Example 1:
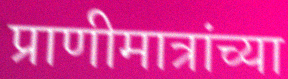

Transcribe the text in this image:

प्राणीमात्रांच्या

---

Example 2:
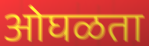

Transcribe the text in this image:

ओघळता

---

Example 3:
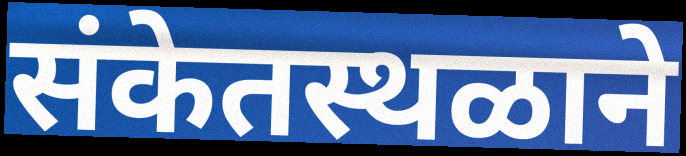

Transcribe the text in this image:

संकेतस्थळाने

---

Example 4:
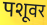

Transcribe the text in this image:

पशूवर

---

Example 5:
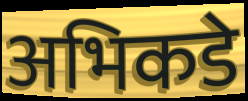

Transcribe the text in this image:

अभिकडे